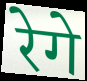
रेगे